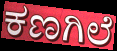
ಕಣಗಿಲೆ